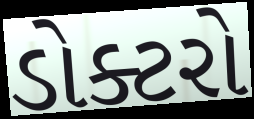
ડોક્ટરો